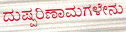
ದುಷ್ಪರಿಣಾಮಗಳೇನು